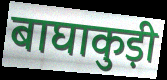
बाघाकुड़ी